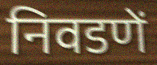
निवडणें